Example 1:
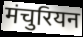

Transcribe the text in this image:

मंचुरियन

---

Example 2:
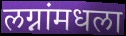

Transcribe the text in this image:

लग्नांमधला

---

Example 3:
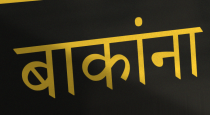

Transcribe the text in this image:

बाकांना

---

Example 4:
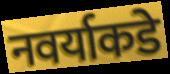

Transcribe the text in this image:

नवर्याकडे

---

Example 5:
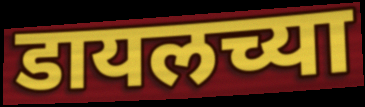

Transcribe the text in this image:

डायलच्या